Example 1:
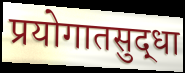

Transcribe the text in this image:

प्रयोगातसुद्धा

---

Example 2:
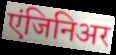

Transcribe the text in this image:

एंजिनिअर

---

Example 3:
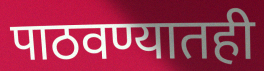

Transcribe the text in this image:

पाठवण्यातही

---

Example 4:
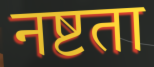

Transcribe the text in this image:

नष्टता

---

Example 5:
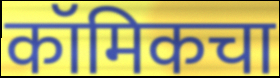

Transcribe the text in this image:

कॉमिकचा